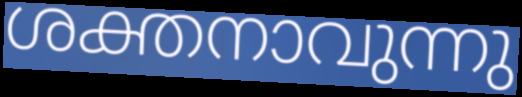
ശക്തനാവുന്നു